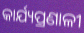
କାର୍ଯ୍ୟପ୍ରଣାଳୀ